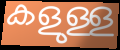
കളുള്ള